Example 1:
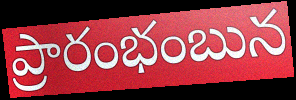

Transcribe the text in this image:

ప్రారంభంబున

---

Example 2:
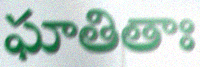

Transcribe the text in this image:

ఘాతితాః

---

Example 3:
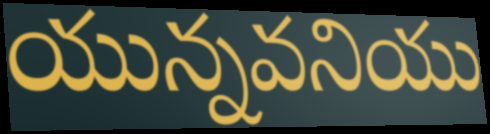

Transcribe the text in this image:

యున్నవనియు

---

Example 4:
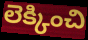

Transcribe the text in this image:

లెక్కించి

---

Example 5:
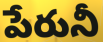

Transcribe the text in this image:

పేరునీ